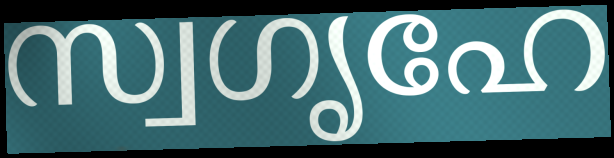
സ്വഗൃഹേ